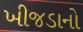
ખીજડાનો